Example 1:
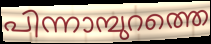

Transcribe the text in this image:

പിന്നാമ്പുറത്തെ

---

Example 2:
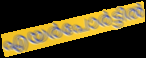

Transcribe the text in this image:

എയർപോർട്ടിൽ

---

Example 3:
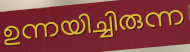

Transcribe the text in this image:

ഉന്നയിച്ചിരുന്ന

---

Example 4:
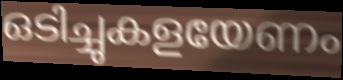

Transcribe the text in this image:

ഒടിച്ചുകളയേണം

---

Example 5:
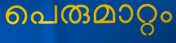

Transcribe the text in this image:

പെരുമാറ്റം